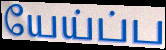
யேய்ப்ப